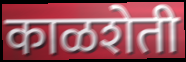
काळशेती